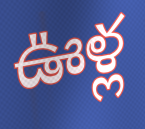
ఊళ్ల